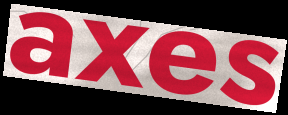
axes